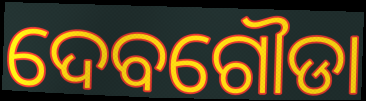
ଦେବଗୌଡା